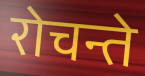
रोचन्ते